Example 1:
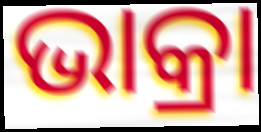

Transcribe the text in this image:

ଭାକ୍ରା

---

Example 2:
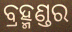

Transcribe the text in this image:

ବ୍ରହ୍ମଣ୍ଡର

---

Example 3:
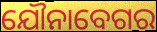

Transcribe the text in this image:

ଯୌନାବେଗର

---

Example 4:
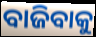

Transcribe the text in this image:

ବାଜିବାକୁ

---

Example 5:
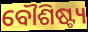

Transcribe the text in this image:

ବୌଶିଷ୍ଟ୍ୟ